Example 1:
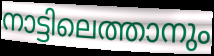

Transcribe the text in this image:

നാട്ടിലെത്താനും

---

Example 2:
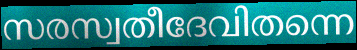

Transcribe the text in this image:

സരസ്വതീദേവിതന്നെ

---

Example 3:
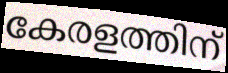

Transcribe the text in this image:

കേരളത്തിന്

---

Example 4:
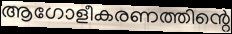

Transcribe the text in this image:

ആഗോളീകരണത്തിന്റെ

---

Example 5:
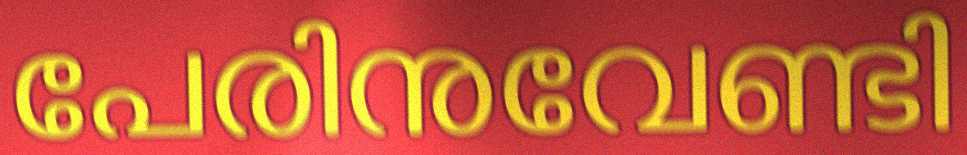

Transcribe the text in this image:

പേരിനുവേണ്ടി